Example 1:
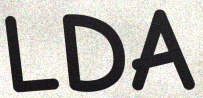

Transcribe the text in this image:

LDA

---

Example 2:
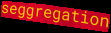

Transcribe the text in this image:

seggregation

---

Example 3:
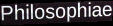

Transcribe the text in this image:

Philosophiae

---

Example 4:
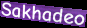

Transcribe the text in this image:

Sakhadeo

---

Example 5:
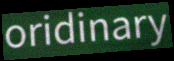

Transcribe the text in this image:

oridinary